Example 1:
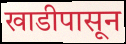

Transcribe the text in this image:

खाडीपासून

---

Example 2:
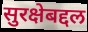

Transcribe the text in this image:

सुरक्षेबद्दल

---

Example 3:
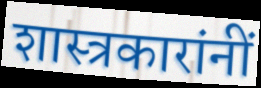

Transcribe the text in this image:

शास्त्रकारांनीं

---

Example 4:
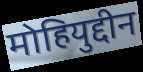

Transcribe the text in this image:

मोहियुद्दीन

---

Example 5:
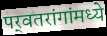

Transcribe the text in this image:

पर्वतरांगांमध्ये